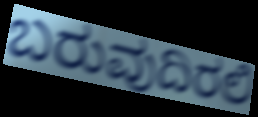
ಬರುವುದಿರಲಿ